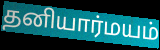
தனியார்மயம்